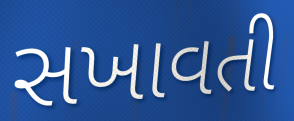
સખાવતી